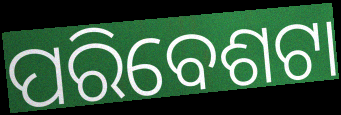
ପରିବେଶଟା